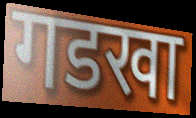
गडखा